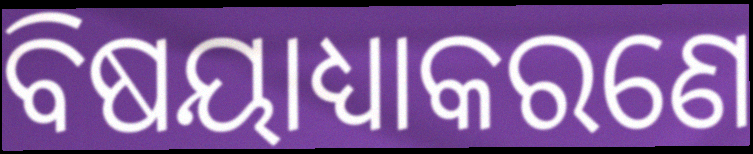
ବିଷୟାଧ୍ୟାକରଣେ